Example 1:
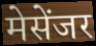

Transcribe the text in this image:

मेसेंजर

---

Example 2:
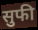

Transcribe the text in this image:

सुफी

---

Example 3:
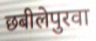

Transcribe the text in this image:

छबीलेपुरवा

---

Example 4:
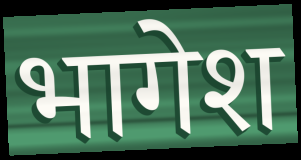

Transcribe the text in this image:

भागेश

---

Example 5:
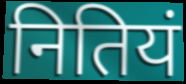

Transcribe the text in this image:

नितियं